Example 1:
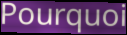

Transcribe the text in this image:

Pourquoi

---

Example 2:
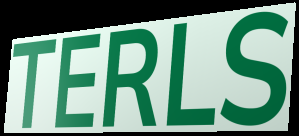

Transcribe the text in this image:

TERLS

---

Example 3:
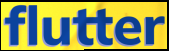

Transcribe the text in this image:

flutter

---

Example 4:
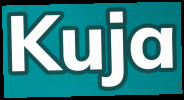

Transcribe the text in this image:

Kuja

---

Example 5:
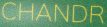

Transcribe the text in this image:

CHANDR